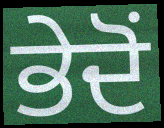
ਭੇਦੋਂ